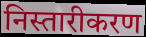
निस्तारीकरण